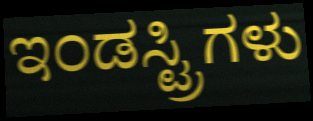
ಇಂಡಸ್ಟ್ರಿಗಳು